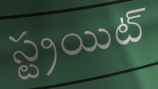
స్ట్రయిట్